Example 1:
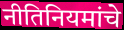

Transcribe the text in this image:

नीतिनियमांचे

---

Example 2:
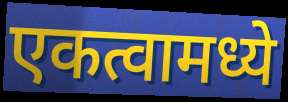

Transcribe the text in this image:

एकत्वामध्ये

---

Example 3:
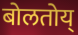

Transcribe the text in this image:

बोलतोय्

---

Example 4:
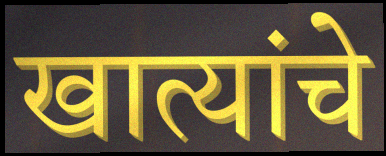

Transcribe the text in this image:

खात्यांचे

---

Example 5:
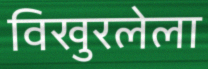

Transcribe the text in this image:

विखुरलेला